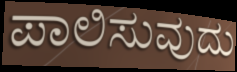
ಪಾಲಿಸುವುದು